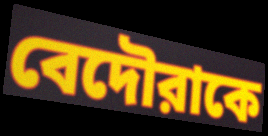
বেদৌরাকে